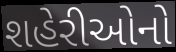
શહેરીઓનો